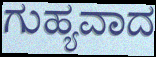
ಗುಹ್ಯವಾದ